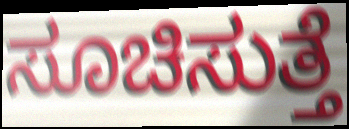
ಸೂಚಿಸುತ್ತೆ